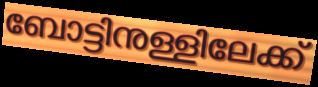
ബോട്ടിനുള്ളിലേക്ക്